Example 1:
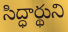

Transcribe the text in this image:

సిద్ధార్థుని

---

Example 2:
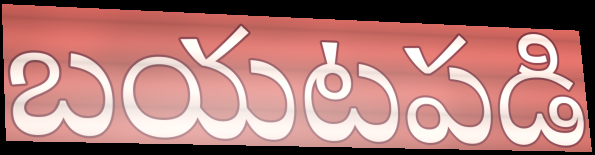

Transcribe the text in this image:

బయటపడి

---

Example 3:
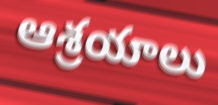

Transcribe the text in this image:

ఆశ్రయాలు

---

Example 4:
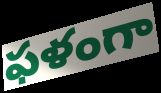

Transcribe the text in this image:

ఫళంగా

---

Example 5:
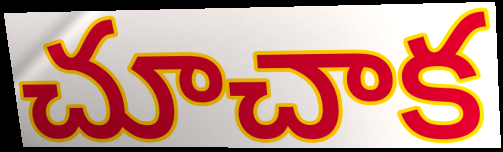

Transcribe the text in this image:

చూచాక